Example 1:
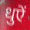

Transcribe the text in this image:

धुऐं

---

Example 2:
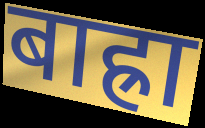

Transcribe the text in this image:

बाह्रा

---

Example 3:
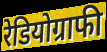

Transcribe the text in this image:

रेडियोग्राफी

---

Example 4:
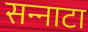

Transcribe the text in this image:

सन्‍नाटा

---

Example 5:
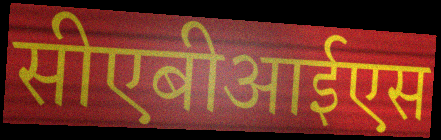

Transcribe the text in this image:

सीएबीआईएस